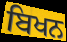
ਬਿਖਨ